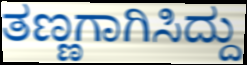
ತಣ್ಣಗಾಗಿಸಿದ್ದು